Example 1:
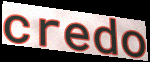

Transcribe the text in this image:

credo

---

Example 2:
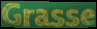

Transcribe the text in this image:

Grasse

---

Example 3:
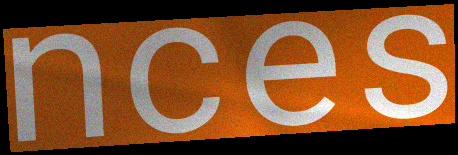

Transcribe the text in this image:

nces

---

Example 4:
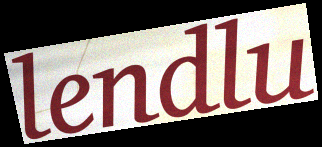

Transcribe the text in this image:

lendlu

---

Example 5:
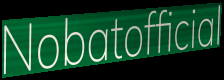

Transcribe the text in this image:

Nobatofficial